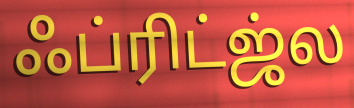
ஃப்ரிட்ஜ்ல